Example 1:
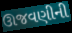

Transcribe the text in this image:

ઊજવણીની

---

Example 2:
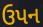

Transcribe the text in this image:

ઉપન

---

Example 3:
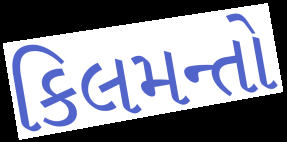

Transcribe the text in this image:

કિલમન્તો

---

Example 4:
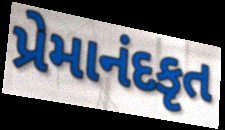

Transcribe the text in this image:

પ્રેમાનંદકૃત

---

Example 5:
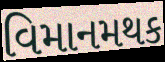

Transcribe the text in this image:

વિમાનમથક